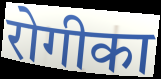
रोगीका